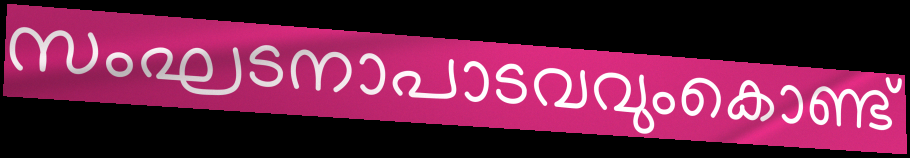
സംഘടനാപാടവവുംകൊണ്ട്